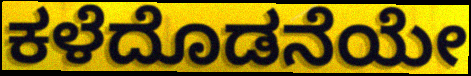
ಕಳೆದೊಡನೆಯೇ